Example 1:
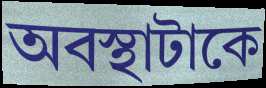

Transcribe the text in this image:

অবস্থাটাকে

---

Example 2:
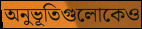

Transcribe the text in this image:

অনুভূতিগুলোকেও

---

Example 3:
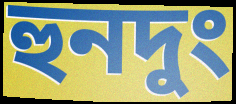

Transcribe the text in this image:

হুনদুং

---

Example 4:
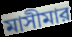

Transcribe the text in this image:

মাসীমার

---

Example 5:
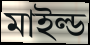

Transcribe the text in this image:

মাইল্ড